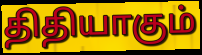
திதியாகும்